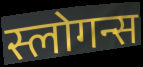
स्लोगन्स